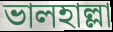
ভালহাল্লা